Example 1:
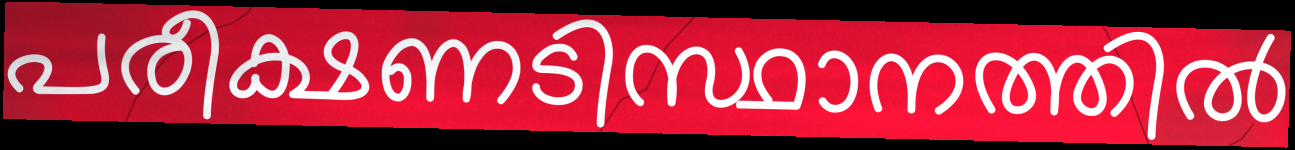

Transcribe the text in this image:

പരീക്ഷണടിസ്ഥാനത്തിൽ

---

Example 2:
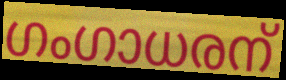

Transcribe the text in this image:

ഗംഗാധരന്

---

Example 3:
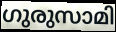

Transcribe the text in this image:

ഗുരുസാമി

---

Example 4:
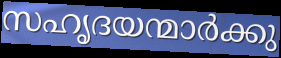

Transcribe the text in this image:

സഹൃദയന്മാർക്കു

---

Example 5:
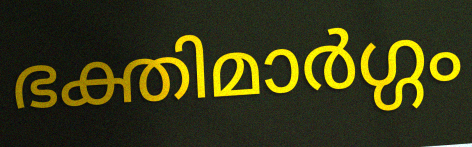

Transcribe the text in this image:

ഭക്തിമാർഗ്ഗം